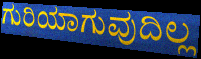
ಗುರಿಯಾಗುವುದಿಲ್ಲ